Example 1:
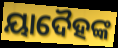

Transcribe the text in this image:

ୟାଦୈହଙ୍କ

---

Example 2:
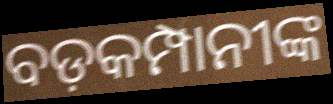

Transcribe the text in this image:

ବଡ଼କମ୍ପାନୀଙ୍କ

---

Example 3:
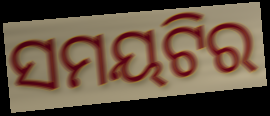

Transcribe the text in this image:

ସମୟଟିର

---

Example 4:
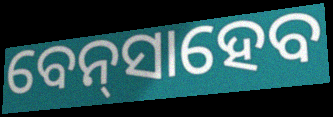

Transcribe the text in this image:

ବେନ୍‌ସାହେବ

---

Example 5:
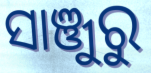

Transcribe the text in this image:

ସାଞ୍ଜୁରୁ